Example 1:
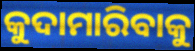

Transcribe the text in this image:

କୁଦାମାରିବାକୁ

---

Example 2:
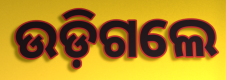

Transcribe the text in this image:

ଉଡ଼ିଗଲେ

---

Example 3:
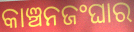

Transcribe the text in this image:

କାଞ୍ଚନଜଂଘାର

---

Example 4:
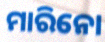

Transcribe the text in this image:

ମାରିନୋ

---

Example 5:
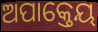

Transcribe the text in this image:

ଅପାକ୍ତେୟ